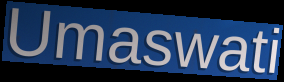
Umaswati